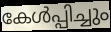
കേൾപ്പിച്ചും